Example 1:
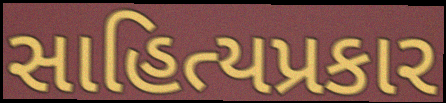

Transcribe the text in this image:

સાહિત્યપ્રકાર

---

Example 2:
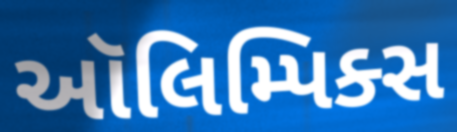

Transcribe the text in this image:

ઑલિમ્પિક્સ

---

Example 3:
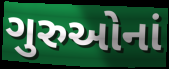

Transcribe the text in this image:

ગુરુઓનાં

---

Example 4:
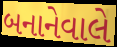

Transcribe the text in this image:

બનાનેવાલે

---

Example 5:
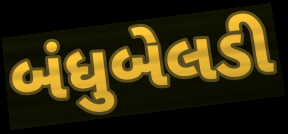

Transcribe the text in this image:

બંધુબેલડી